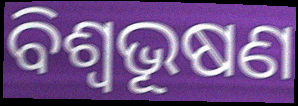
ବିଶ୍ବଭୂଷଣ